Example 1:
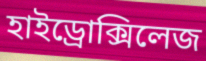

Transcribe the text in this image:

হাইড্রোক্সিলেজ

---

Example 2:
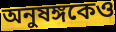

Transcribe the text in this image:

অনুষঙ্গকেও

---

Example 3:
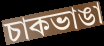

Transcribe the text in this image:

চাকভাঙা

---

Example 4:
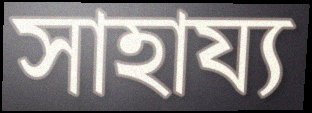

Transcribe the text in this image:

সাহায্য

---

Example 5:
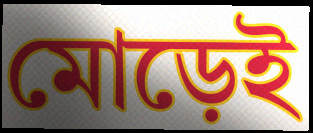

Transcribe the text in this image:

মোড়েই